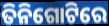
ତିନିଗୋଟିରେ